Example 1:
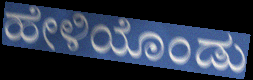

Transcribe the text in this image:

ಹೇಳಿಯೊಂಡು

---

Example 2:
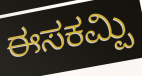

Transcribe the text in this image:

ಈಸಕಮ್ಪಿ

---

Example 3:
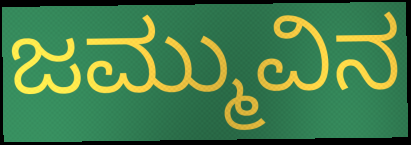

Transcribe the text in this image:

ಜಮ್ಮುವಿನ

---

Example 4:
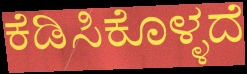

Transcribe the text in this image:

ಕೆಡಿಸಿಕೊಳ್ಳದೆ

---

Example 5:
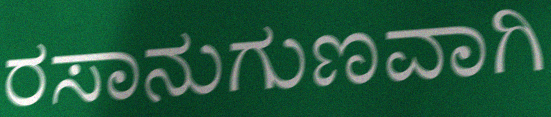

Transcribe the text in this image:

ರಸಾನುಗುಣವಾಗಿ